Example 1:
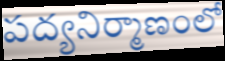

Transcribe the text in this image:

పద్యనిర్మాణంలో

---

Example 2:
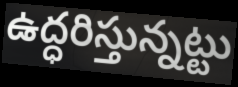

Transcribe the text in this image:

ఉద్ధరిస్తున్నట్టు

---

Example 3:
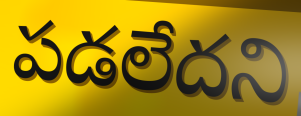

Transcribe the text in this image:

పడలేదని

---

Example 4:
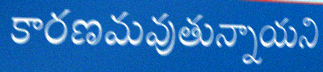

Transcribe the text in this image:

కారణమవుతున్నాయని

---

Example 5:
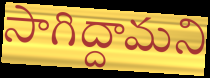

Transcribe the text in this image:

సాగిద్దామని